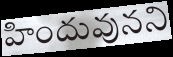
హిందువునని